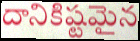
దానికిష్టమైన